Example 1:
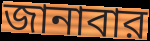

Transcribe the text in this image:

জানাবার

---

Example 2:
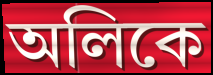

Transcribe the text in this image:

অলিকে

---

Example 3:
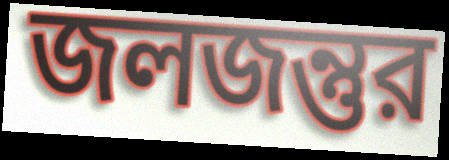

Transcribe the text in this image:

জলজন্তুর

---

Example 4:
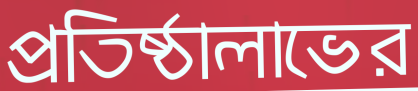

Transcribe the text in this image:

প্রতিষ্ঠালাভের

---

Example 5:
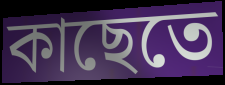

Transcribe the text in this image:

কাছেতে